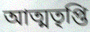
আত্মতৃপ্তি